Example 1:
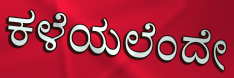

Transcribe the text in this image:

ಕಳೆಯಲೆಂದೇ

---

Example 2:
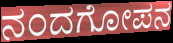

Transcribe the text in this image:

ನಂದಗೋಪನ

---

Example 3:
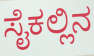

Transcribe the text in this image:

ಸೈಕಲ್ಲಿನ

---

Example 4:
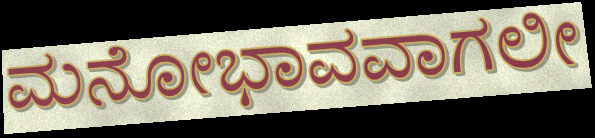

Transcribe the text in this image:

ಮನೋಭಾವವಾಗಲೀ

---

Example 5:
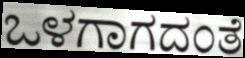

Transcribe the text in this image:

ಒಳಗಾಗದಂತೆ